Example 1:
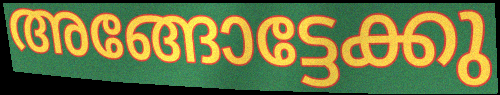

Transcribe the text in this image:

അങ്ങോട്ടേക്കു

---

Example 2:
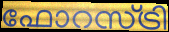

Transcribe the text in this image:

ഫോറസ്ട്രി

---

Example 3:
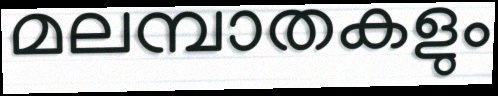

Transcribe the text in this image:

മലമ്പാതകളും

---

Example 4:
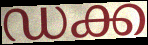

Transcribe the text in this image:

ഡക്ക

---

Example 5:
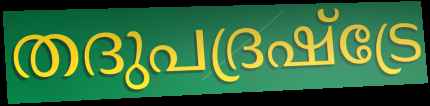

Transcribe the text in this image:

തദുപദ്രഷ്ട്രേ